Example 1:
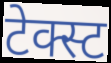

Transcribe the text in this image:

टेक्स्ट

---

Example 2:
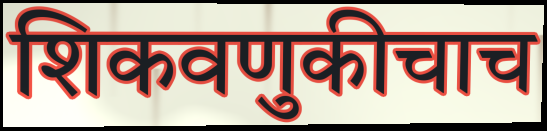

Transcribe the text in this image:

शिकवणुकीचाच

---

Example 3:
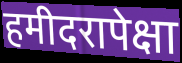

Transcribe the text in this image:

हमीदरापेक्षा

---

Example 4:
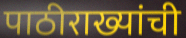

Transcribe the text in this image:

पाठीराख्यांची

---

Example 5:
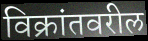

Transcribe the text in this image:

विक्रांतवरील